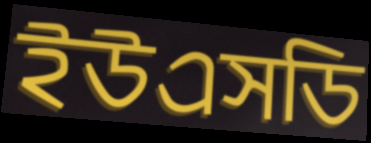
ইউএসডি